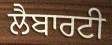
ਲੈਬਾਰਟੀ